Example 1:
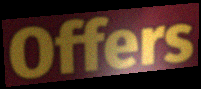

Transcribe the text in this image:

Offers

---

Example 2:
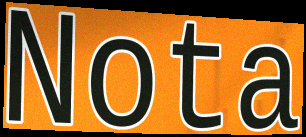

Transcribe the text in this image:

Nota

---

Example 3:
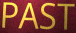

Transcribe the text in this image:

PAST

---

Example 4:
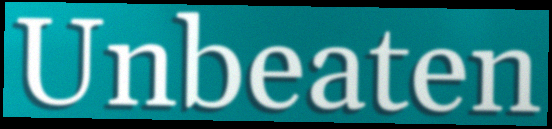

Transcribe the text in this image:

Unbeaten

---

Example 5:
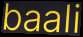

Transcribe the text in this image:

baali